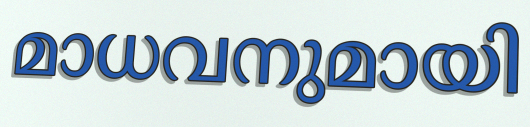
മാധവനുമായി